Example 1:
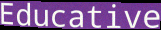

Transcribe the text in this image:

Educative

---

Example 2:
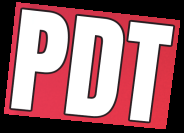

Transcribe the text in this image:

PDT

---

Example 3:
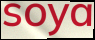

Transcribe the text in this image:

soya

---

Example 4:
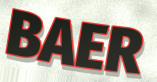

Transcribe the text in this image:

BAER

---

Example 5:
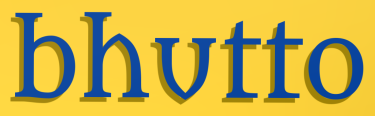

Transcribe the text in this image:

bhutto